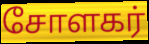
சோளகர்